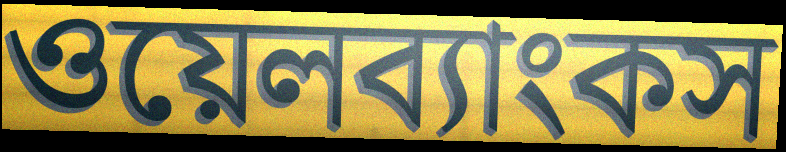
ওয়েলব্যাংকস